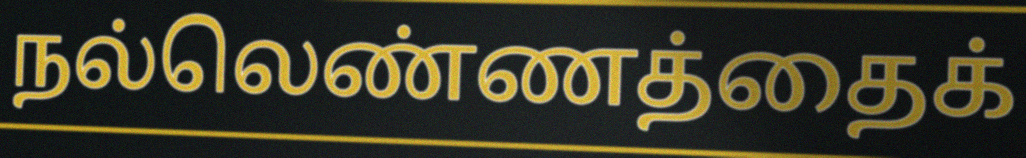
நல்லெண்ணத்தைக்